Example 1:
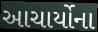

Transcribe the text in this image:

આચાર્યોના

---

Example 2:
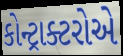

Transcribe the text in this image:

કોન્ટ્રાક્ટરોએ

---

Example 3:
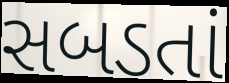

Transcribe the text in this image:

સબડતાં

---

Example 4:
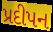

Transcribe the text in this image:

પ્રદીપન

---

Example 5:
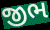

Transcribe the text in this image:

જીભ